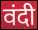
वंदी